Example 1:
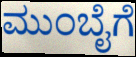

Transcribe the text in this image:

ಮುಂಬೈಗೆ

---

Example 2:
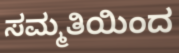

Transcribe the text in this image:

ಸಮ್ಮತಿಯಿಂದ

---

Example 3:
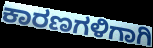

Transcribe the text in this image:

ಕಾರಣಗಳಿಗಾಗಿ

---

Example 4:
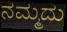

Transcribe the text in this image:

ನಮ್ಮದು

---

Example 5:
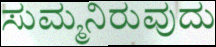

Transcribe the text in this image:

ಸುಮ್ಮನಿರುವುದು